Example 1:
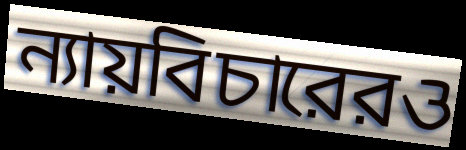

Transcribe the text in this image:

ন্যায়বিচারেরও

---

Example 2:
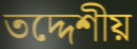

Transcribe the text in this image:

তদ্দেশীয়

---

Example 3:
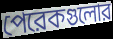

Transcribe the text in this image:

পেরেকগুলোর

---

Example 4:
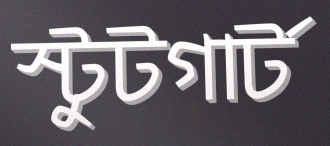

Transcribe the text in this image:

স্টুটগার্ট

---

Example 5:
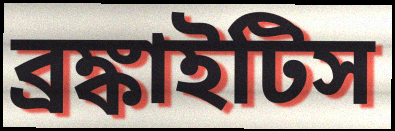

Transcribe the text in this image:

ব্রঙ্কাইটিস